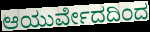
ಆಯುರ್ವೇದದಿಂದ